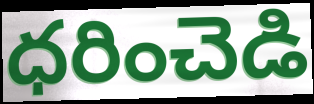
ధరించెడి